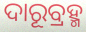
ଦାରୂବ୍ରହ୍ମ